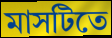
মাসটিতে